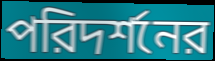
পরিদর্শনের